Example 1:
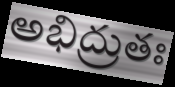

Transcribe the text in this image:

అభిద్రుతః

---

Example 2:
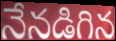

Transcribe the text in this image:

నేనడిగిన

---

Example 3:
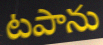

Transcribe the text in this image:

టపాను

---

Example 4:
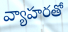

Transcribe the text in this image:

వ్యాహరతో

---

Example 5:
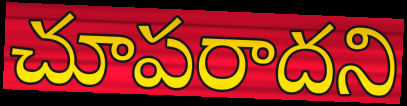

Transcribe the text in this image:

చూపరాదని